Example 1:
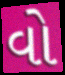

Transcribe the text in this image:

વો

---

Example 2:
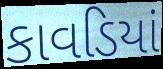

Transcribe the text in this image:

કાવડિયાં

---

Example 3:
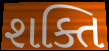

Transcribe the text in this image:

શક્તિ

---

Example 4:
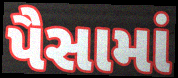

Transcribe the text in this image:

પૈસામાં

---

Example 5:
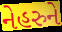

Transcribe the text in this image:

નેહરુને